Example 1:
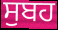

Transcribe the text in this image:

ਸੁਬਹ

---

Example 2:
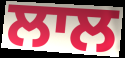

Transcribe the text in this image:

ਲਾਲ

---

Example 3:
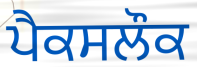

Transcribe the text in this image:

ਪੈਕਸਲੌਕ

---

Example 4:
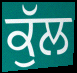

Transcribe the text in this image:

ਕੁੱਲ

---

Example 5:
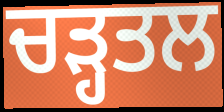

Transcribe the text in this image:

ਚੜ੍ਹਤਲ